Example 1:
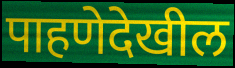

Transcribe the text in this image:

पाहणेदेखील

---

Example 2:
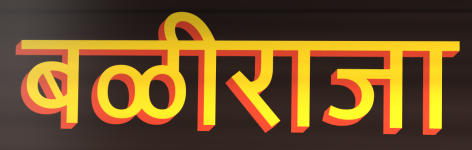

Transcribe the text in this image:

बळीराजा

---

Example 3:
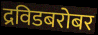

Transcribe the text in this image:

द्रविडबरोबर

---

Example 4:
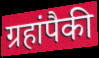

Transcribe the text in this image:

ग्रहांपैकी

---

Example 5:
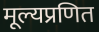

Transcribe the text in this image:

मूल्यप्रणित